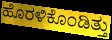
ಹೊರಳಿಕೊಂಡಿತ್ತು